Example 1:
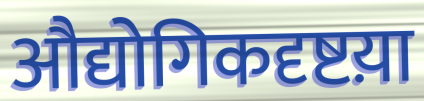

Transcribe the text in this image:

औद्योगिकदृष्टय़ा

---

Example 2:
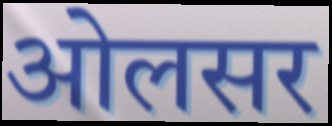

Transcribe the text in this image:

ओलसर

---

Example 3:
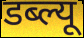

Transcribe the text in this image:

डब्ल्यू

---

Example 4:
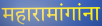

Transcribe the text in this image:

महारामांगांना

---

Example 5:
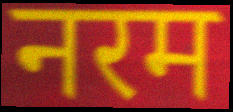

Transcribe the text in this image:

नरम